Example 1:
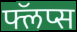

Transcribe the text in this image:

फ्लॅप्स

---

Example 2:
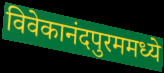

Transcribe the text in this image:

विवेकानंदपुरममध्ये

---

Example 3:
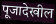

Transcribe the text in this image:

पूजादेखील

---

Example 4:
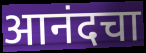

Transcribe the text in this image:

आनंदचा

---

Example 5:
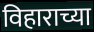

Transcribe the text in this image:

विहाराच्या